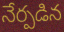
నేర్పడిన